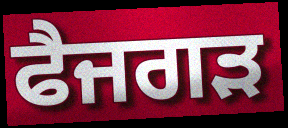
ਫੈਜਗੜ